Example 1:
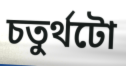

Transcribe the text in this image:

চতুৰ্থটো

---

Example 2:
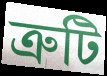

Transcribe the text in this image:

ত্ৰুটি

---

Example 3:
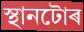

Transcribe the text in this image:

স্থানটোৰ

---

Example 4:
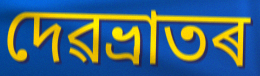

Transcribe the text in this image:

দেৱভ্ৰাতৰ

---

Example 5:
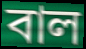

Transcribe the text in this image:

বাল